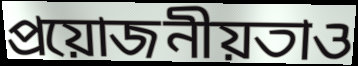
প্ৰয়োজনীয়তাও